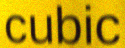
cubic